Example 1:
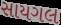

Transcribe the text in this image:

સાયગલ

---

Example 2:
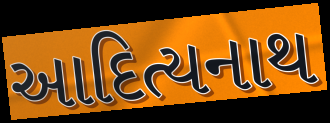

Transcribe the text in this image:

આદિત્યનાથ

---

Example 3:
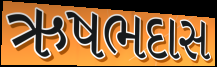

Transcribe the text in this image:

ઋષભદાસ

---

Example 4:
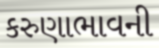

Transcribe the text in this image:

કરુણાભાવની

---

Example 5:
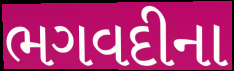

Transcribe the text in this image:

ભગવદીના